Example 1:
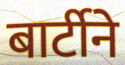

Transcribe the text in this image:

बार्टीने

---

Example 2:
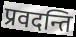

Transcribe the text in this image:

प्रवदन्ति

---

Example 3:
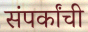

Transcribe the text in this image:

संपर्कांची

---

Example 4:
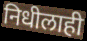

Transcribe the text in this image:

निधीलाही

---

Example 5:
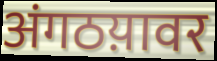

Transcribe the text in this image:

अंगठय़ावर